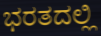
ಭರತದಲ್ಲಿ